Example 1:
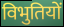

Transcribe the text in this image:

विभुतियों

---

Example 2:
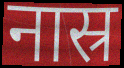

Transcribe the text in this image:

नास्र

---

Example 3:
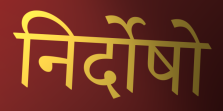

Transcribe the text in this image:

निर्दोषो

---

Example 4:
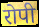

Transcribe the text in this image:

रोपी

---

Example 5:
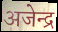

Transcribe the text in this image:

अजेन्द्र